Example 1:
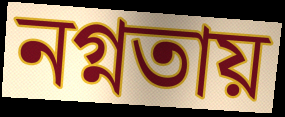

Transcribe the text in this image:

নগ্নতায়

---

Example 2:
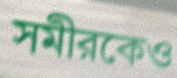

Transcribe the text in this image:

সমীরকেও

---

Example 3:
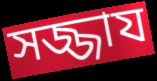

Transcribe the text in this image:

সজ্জায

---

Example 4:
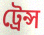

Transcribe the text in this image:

ট্রেন্স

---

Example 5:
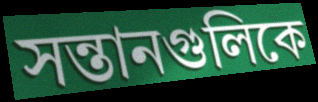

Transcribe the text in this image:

সন্তানগুলিকে